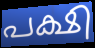
പക്ഷി